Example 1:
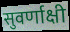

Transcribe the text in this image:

सुवर्णाक्षी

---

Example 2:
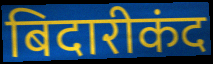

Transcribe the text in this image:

बिदारीकंद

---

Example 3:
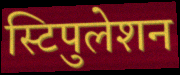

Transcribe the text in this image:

स्टिपुलेशन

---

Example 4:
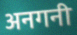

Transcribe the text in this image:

अनगनी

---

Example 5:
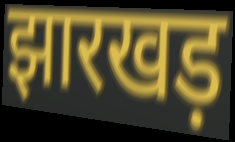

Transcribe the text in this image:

झारखड़